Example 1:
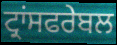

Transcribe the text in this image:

ਟ੍ਰਾਂਸਫਰੇਬਲ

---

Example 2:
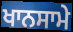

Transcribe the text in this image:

ਖਾਨਸਾਮੇ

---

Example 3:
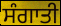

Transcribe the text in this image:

ਸੰਗਾਤੀ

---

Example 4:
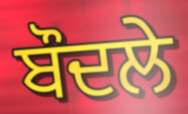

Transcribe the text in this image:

ਬੌਦਲੇ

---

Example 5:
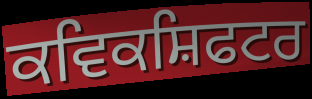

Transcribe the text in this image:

ਕਵਿਕਸ਼ਿਫਟਰ